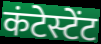
कंटेस्‍टेंट